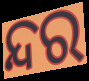
ନ୍ଦର